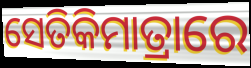
ସେତିକିମାତ୍ରାରେ